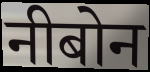
नीबोन